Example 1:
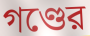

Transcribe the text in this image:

গণ্ডের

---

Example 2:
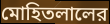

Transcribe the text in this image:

মোহিতলালের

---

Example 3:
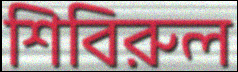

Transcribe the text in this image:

শিবিরুল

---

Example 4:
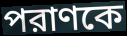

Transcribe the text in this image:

পরাণকে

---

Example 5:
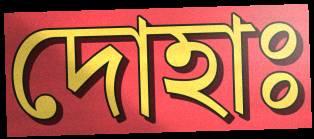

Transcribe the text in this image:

দোহাঃ